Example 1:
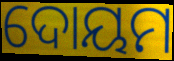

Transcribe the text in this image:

ଦୋୟମ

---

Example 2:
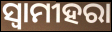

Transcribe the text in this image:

ସ୍ଵାମୀହରା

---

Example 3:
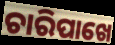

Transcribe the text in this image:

ଚାରିପାଖେ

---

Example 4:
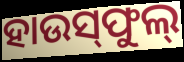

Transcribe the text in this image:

ହାଉସ୍‌ଫୁଲ୍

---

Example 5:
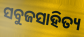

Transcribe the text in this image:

ସବୁଜସାହିତ୍ୟ